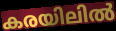
കരയിലിൽ